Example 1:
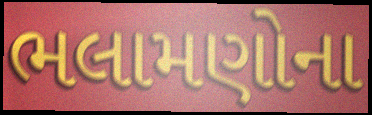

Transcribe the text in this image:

ભલામણોના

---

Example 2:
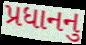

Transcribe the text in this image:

પ્રધાનનુ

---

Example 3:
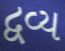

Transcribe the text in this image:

દ્વવ્ય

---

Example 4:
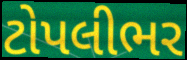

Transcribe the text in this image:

ટોપલીભર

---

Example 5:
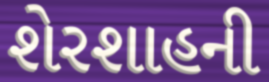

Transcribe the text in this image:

શેરશાહની